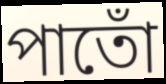
পাতোঁ